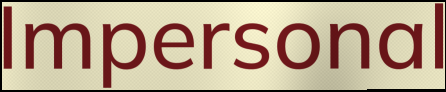
Impersonal